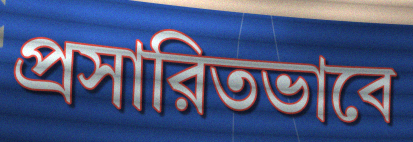
প্রসারিতভাবে